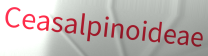
Ceasalpinoideae